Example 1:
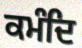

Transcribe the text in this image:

ਕਮੰਦਿ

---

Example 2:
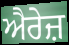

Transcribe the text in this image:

ਐਰੇਜ਼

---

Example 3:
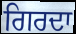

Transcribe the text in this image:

ਗਿਰਦਾ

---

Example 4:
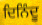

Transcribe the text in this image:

ਦਿਨਿੰਦੂ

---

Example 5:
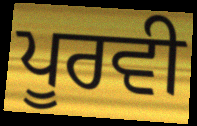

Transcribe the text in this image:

ਪੂਰਵੀ